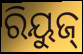
ରିୟୁଜ୍